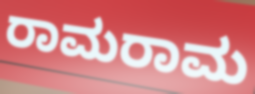
ರಾಮರಾಮ